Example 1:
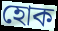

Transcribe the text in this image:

হোক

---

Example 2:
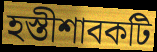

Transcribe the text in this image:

হস্তীশাবকটি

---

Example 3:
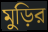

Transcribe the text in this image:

মুড়ির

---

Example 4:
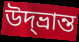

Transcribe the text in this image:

উদ্‌ভ্রান্ত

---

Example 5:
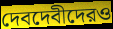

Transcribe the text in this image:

দেবদেবীদেরও